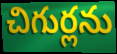
చిగుర్లను